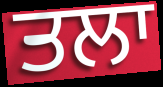
ਤਲਾ